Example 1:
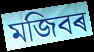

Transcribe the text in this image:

মজিবৰ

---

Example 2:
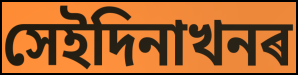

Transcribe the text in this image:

সেইদিনাখনৰ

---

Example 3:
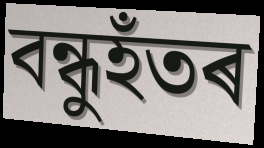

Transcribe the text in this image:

বন্ধুহঁতৰ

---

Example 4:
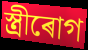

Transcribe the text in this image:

স্ত্ৰীৰোগ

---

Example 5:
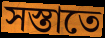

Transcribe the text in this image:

সস্তাতে